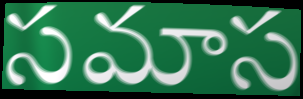
సమాస